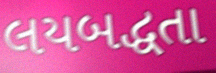
લયબદ્ધતા